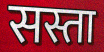
सस्ता